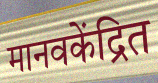
मानवकेंद्रित